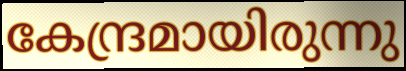
കേന്ദ്രമായിരുന്നു